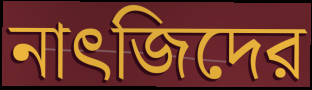
নাৎজিদের